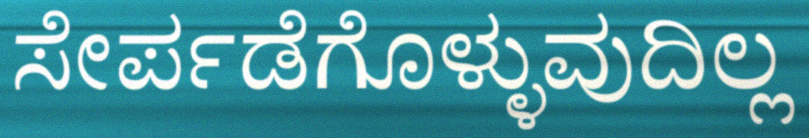
ಸೇರ್ಪಡೆಗೊಳ್ಳುವುದಿಲ್ಲ